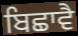
ਬਿਛਾਵੈ